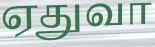
ஏதுவா